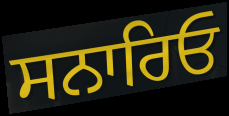
ਸਨਾਰਿਓ